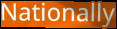
Nationally